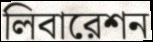
লিবারেশন